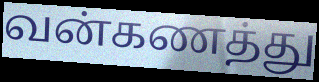
வன்கணத்து